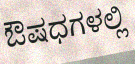
ಔಷಧಗಳಲ್ಲಿ